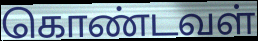
கொண்டவள்